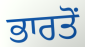
ਭਾਰਤੋਂ